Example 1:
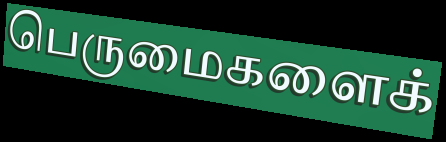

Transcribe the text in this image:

பெருமைகளைக்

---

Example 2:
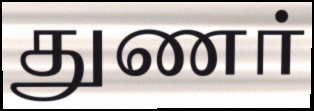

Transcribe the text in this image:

துணர்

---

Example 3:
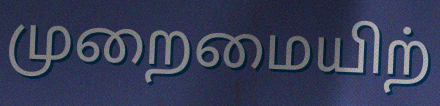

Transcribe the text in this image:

முறைமையிற்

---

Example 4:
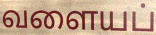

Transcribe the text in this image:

வளையப்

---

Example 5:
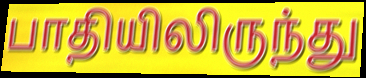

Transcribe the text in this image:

பாதியிலிருந்து